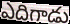
ఎదిగాడు